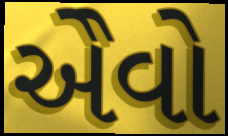
એેવો